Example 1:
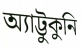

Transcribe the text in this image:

অ্যাট্টুকুনি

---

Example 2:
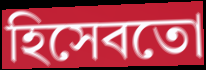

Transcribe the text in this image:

হিসেবতো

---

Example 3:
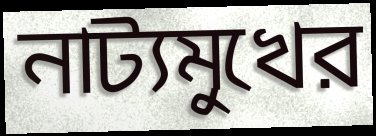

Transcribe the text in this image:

নাট্যমুখের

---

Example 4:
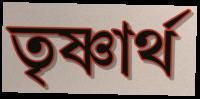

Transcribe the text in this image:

তৃষ্ণার্থ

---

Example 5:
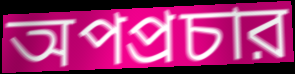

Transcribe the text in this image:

অপপ্রচার